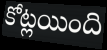
కోట్లయింది